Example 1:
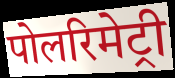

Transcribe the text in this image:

पोलरिमेट्री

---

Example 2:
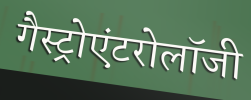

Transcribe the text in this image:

गैस्ट्रोएंटरोलॉजी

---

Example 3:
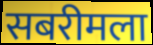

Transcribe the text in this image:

सबरीमला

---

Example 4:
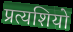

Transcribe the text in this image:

प्रत्यशियो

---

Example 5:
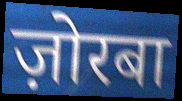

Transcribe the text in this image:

ज़ोरबा